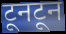
टूनटून